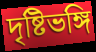
দৃষ্টিভঙ্গি